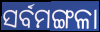
ସର୍ବମଙ୍ଗଳା